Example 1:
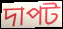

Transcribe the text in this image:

দাপট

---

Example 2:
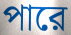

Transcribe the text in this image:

পারে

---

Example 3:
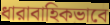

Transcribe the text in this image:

ধারাবাহিকভাবে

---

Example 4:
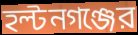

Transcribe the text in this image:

হল্টনগঞ্জের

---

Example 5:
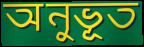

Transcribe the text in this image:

অনুভূত